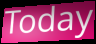
Today